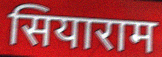
सियाराम